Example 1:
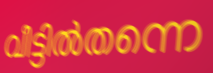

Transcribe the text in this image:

വീട്ടിൽതന്നെ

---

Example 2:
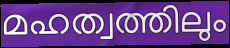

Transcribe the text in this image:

മഹത്വത്തിലും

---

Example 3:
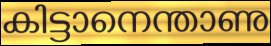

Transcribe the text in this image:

കിട്ടാനെന്താണു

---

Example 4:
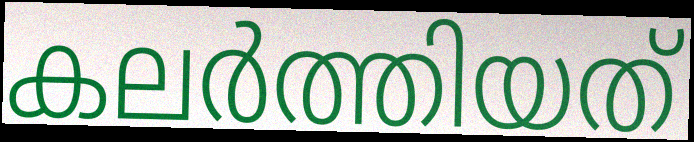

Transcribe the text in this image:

കലർത്തിയത്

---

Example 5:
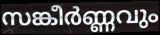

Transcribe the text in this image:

സങ്കീർണ്ണവും